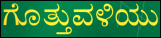
ಗೊತ್ತುವಳಿಯು